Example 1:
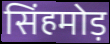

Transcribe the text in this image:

सिंहमोड़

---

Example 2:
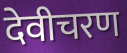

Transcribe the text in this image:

देवीचरण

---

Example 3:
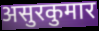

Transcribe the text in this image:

असुरकुमार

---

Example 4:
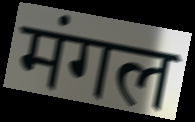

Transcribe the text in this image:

मंगल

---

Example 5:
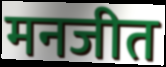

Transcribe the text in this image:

मनजीत